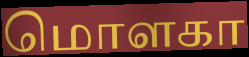
மொளகா